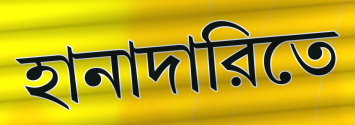
হানাদারিতে